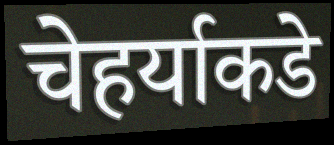
चेहर्याकडे